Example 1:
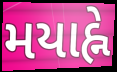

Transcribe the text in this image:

મયાહ્ને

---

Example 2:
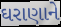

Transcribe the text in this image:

ઘરાણાને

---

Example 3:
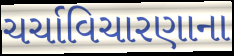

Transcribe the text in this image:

ચર્ચાવિચારણાના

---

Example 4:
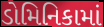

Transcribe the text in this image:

ડોમિનિકામાં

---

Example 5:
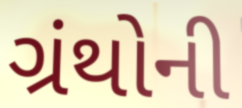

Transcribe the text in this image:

ગ્રંથોની